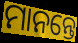
ମାନନ୍ତେ